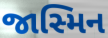
જાસ્મિન